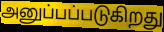
அனுப்பப்படுகிறது